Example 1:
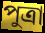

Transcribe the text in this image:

পুত্রা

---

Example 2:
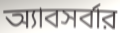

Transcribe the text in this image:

অ্যাবসর্বার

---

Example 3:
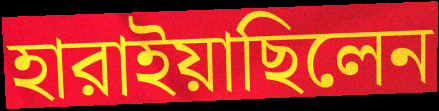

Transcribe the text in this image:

হারাইয়াছিলেন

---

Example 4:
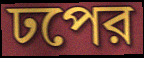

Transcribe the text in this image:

ঢপের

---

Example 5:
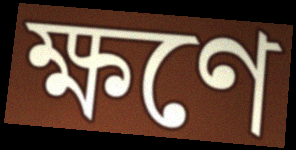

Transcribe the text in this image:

ক্ষণে